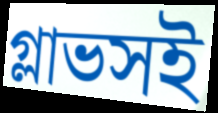
গ্লাভসই